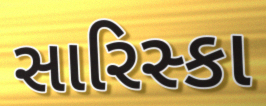
સારિસ્કા